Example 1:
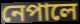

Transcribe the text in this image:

নেপালে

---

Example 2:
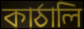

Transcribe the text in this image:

কাঠালি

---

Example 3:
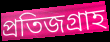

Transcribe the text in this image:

প্রতিজগ্রাহ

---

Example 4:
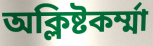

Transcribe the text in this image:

অক্লিষ্টকর্ম্মা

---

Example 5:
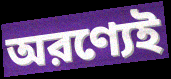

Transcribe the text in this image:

অরণ্যেই